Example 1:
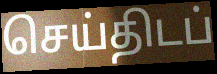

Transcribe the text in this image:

செய்திடப்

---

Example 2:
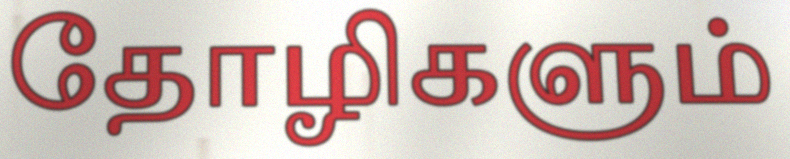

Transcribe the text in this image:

தோழிகளும்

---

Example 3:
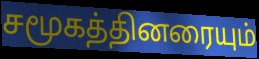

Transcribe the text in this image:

சமூகத்தினரையும்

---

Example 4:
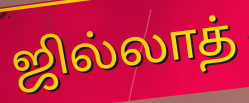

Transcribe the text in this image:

ஜில்லாத்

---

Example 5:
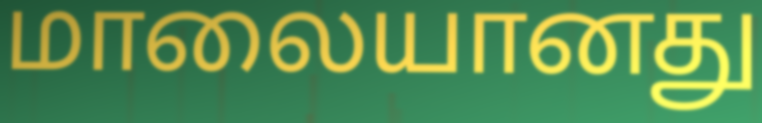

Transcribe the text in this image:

மாலையானது